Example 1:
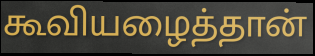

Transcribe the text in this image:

கூவியழைத்தான்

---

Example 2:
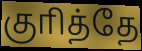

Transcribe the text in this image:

குரித்தே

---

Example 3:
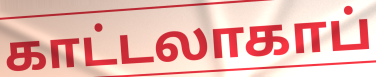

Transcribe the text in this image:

காட்டலாகாப்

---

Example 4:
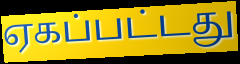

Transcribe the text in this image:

ஏகப்பட்டது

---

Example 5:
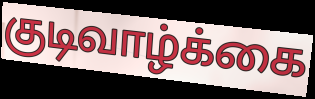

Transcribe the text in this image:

குடிவாழ்க்கை